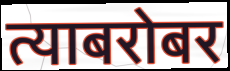
त्याबरोबर